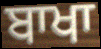
ਬਾਖਾ